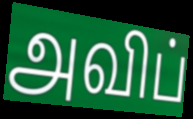
அவிப்